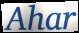
Ahar